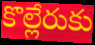
కొల్లేరుకు